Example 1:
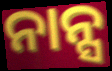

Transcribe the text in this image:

ନାନ୍ସ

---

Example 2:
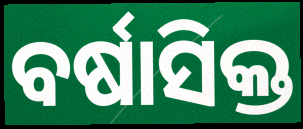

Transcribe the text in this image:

ବର୍ଷାସିକ୍ତ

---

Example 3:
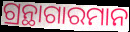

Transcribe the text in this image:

ଗ୍ରନ୍ଥାଗାରମାନ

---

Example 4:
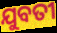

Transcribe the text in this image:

ଯୁବତୀ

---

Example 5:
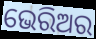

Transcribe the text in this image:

ଭେରିଅର